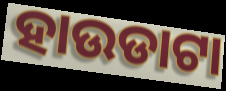
ହାଉଡାଟା